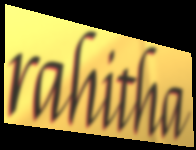
rahitha